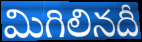
మిగిలినదీ